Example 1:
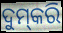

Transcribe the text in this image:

ଦୁମ୍‍କରି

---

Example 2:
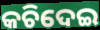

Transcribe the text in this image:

କଚିଦେଇ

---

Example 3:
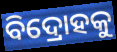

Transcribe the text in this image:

ବିଦ୍ରୋହକୁ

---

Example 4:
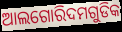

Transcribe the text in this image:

ଆଲଗୋରିଦମଗୁଡିକ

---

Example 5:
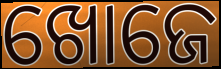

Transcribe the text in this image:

ଖୋଜେ